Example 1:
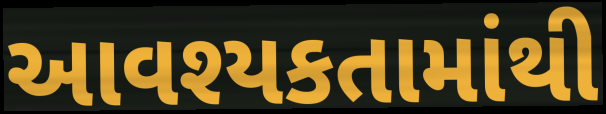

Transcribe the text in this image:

આવશ્યકતામાંથી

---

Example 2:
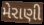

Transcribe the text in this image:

મેરાણી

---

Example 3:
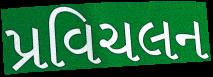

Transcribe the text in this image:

પ્રવિચલન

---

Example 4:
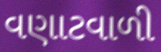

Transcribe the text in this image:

વણાટવાળી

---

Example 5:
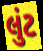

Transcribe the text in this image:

લુંટ